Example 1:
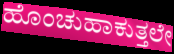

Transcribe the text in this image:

ಹೊಂಚುಹಾಕುತ್ತಲೇ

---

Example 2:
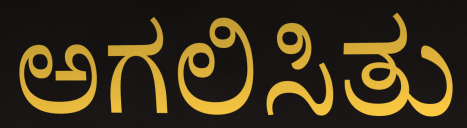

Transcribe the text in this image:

ಅಗಲಿಸಿತು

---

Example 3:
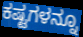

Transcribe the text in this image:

ಕಷ್ಟಗಳನ್ನೂ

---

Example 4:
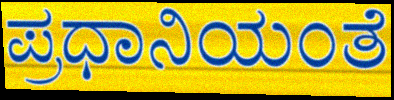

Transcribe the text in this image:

ಪ್ರಧಾನಿಯಂತೆ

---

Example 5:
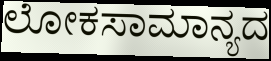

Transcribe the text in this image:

ಲೋಕಸಾಮಾನ್ಯದ